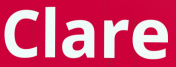
Clare